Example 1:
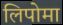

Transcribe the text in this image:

लिपोमा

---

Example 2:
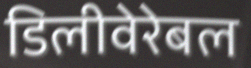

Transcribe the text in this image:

डिलीवेरेबल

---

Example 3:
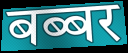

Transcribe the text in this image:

बब्बर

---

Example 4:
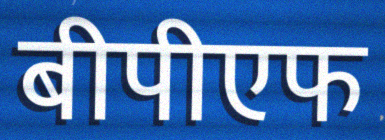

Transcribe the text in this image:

बीपीएफ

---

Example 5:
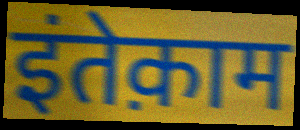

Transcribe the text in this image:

इंतेक़ाम